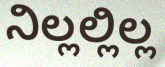
ನಿಲ್ಲಲ್ಲಿಲ್ಲ